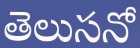
తెలుసనో